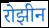
रोझीन